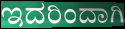
ಇದರಿಂದಾಗಿ